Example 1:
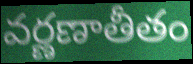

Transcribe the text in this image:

వర్ణణాతీతం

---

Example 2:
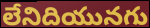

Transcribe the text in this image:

లేనిదియునగు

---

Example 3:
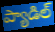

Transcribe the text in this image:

ప్యాడిల్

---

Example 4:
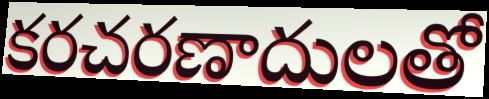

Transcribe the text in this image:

కరచరణాదులతో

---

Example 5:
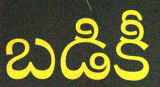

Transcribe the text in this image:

బడికీ